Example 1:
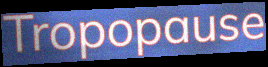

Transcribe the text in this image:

Tropopause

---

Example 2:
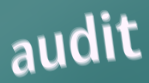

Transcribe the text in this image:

audit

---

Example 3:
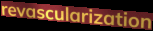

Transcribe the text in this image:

revascularization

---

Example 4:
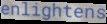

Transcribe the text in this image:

enlightens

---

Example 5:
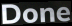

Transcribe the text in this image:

Done